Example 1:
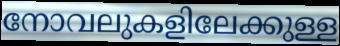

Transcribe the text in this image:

നോവലുകളിലേക്കുള്ള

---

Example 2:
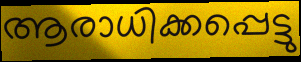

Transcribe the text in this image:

ആരാധിക്കപ്പെട്ടു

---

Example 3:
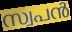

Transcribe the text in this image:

സ്വപൻ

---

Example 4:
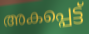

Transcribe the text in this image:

അകപ്പെട്ട്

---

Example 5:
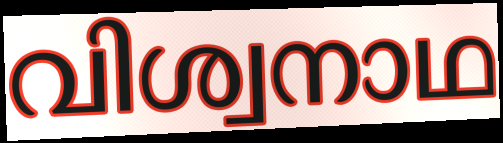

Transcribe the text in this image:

വിശ്വനാഥ